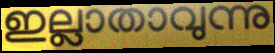
ഇല്ലാതാവുന്നു